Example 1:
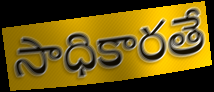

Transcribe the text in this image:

సాధికారతే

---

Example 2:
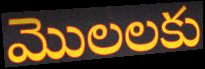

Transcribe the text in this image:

మొలలకు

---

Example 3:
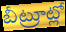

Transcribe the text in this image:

బీట్రూట్లో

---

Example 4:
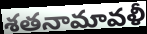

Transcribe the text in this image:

శతనామావళీ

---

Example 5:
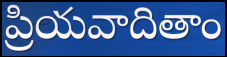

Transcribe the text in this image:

ప్రియవాదితాం